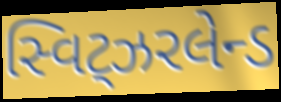
સ્વિટ્ઝરલેન્ડ